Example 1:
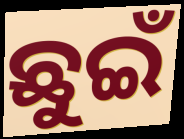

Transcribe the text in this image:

ଛୁଇଁ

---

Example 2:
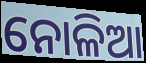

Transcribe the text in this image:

ନୋଳିଆ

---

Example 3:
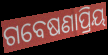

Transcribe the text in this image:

ଗବେଷଣାପ୍ରିୟ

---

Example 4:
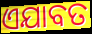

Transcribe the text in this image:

ଏଯାବତ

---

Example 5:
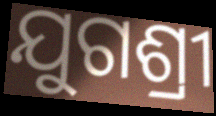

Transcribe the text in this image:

ଯୁଗଶ୍ରୀ